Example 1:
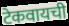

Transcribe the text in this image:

टेकवायची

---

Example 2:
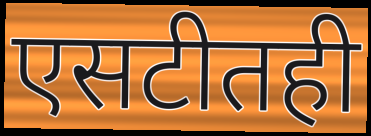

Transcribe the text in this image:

एसटीतही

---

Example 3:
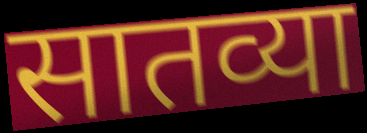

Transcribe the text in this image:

सातव्या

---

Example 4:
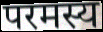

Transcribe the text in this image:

परमस्य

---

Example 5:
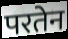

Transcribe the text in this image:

परतेन